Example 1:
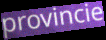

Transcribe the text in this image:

provincie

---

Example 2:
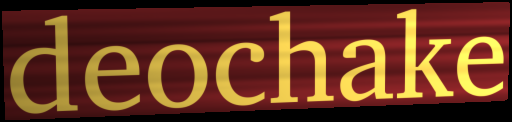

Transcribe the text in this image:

deochake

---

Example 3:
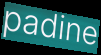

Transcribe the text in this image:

padine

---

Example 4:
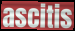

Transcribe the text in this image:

ascitis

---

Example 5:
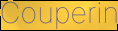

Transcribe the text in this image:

Couperin